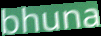
bhuna